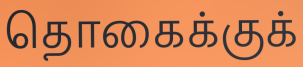
தொகைக்குக்